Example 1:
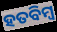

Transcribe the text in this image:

ହତବିମ୍ବ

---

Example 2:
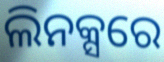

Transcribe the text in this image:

ଲିନକ୍ସରେ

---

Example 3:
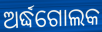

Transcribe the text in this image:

ଅର୍ଦ୍ଧଗୋଲକ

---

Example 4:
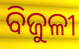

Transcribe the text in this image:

ବିଜୁଳୀ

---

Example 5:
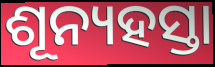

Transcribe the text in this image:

ଶୂନ୍ୟହସ୍ତା